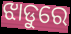
ଝାଡୁରେ